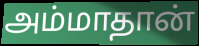
அம்மாதான்